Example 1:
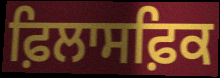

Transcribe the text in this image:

ਫ਼ਿਲਾਸਫ਼ਿਕ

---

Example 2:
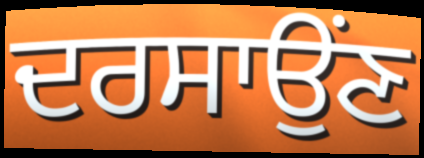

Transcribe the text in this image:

ਦਰਸਾਉਂਣ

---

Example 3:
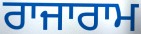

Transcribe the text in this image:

ਰਾਜਾਰਾਮ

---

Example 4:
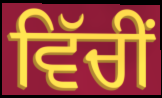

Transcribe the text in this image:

ਵਿੱਚੀਂ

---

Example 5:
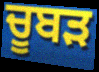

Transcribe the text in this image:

ਚੂਬੜ